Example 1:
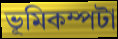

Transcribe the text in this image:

ভূমিকম্পটা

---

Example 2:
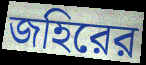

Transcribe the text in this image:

জহিরের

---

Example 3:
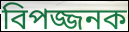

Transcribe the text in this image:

বিপজ্জনক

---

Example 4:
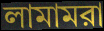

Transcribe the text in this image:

লামামরা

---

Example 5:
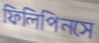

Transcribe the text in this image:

ফিলিপিনসে